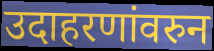
उदाहरणांवरुन